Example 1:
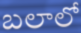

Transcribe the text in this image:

బలాలో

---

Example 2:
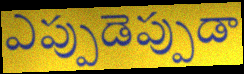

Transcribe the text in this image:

ఎప్పుడెప్పుడా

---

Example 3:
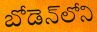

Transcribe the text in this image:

బోడెన్‌లోని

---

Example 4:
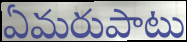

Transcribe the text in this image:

ఏమరుపాటు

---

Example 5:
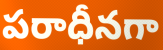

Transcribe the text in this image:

పరాధీనగా